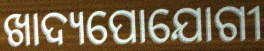
ଖାଦ୍ୟପୋଯୋଗୀ